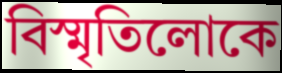
বিস্মৃতিলোকে